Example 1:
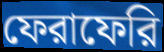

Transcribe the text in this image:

ফেরাফেরি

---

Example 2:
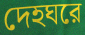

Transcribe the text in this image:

দেহঘরে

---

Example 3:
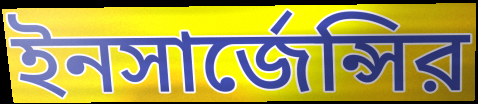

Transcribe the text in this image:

ইনসার্জেন্সির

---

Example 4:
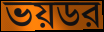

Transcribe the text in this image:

ভয়ডর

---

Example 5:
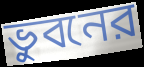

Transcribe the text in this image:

ভুবনের